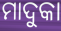
ମାଦୁକା